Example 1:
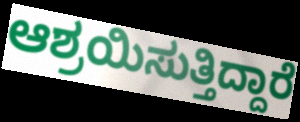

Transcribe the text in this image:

ಆಶ್ರಯಿಸುತ್ತಿದ್ದಾರೆ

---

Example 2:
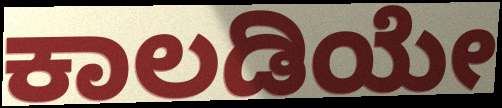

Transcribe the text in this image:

ಕಾಲಡಿಯೇ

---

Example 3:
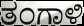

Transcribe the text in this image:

ತಂಗಾಳಿ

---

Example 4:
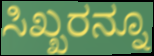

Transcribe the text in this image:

ಸಿಖ್ಖರನ್ನೂ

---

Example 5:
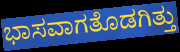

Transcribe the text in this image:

ಭಾಸವಾಗತೊಡಗಿತ್ತು